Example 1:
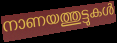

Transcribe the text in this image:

നാണയത്തുട്ടുകൾ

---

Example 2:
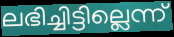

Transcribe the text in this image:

ലഭിച്ചിട്ടില്ലെന്ന്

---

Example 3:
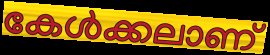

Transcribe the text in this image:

കേൾക്കലാണ്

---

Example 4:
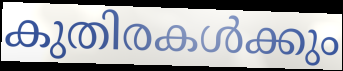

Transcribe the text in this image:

കുതിരകൾക്കും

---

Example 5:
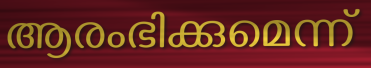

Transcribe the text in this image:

ആരംഭിക്കുമെന്ന്